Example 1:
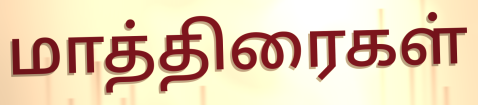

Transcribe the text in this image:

மாத்திரைகள்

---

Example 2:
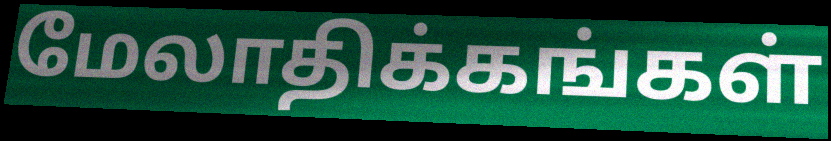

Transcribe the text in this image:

மேலாதிக்கங்கள்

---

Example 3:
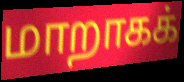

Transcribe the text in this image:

மாறாகக்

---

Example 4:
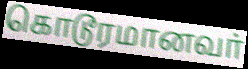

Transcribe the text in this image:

கொடூரமானவர்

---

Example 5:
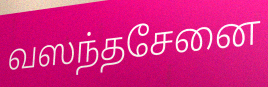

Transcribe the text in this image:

வஸந்தசேனை